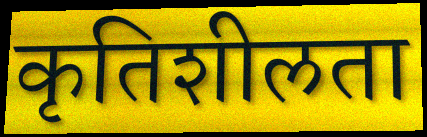
कृतिशीलता